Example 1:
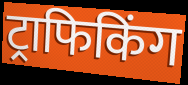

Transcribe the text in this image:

ट्राफिकिंग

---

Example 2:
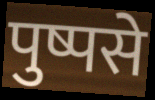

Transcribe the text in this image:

पुष्पसे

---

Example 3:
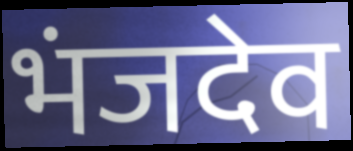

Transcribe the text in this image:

भंजदेव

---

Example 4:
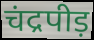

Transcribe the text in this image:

चंद्रपीड़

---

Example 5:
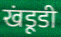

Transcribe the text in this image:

खंडूडी